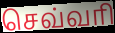
செவ்வரி